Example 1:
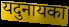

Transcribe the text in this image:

यदुनायका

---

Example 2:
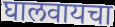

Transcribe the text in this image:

घालवायचा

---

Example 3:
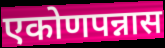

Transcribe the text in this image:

एकोणपन्नास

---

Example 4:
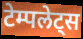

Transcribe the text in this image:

टेम्पलेट्स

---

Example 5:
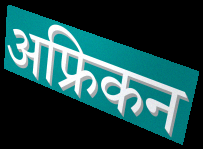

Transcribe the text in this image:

अफ्रिकन